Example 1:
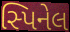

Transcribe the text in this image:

સ્પિનેલ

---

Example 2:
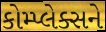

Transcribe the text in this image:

કોમ્પ્લેક્સને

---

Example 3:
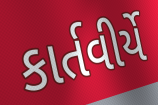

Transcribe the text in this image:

કાર્તવીર્યે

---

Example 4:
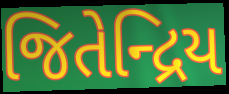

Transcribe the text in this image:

જિતેન્દ્રિય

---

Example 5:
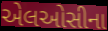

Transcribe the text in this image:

એલઓસીના